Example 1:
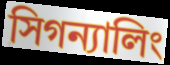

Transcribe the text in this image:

সিগন্যালিং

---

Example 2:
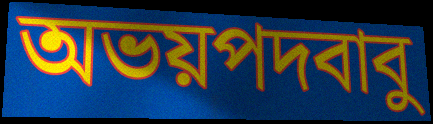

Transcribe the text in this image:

অভয়পদবাবু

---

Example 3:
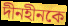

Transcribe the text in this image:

দীনহীনকে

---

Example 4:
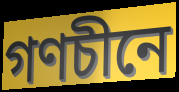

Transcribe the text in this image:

গণচীনে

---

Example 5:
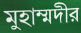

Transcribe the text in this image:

মুহাম্মদীর